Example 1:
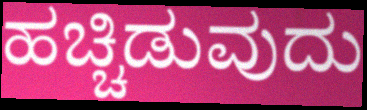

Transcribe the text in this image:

ಹಚ್ಚಿಡುವುದು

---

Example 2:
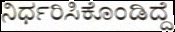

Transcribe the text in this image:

ನಿರ್ಧರಿಸಿಕೊಂಡಿದ್ದೆ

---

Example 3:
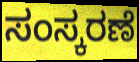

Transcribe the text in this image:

ಸಂಸ್ಕರಣೆ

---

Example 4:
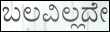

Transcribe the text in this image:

ಬಲವಿಲ್ಲದೇ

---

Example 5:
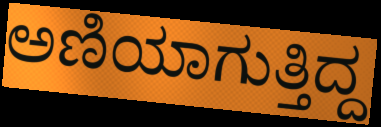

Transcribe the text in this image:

ಅಣಿಯಾಗುತ್ತಿದ್ದ